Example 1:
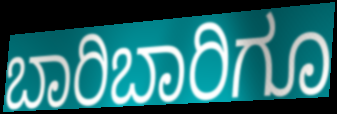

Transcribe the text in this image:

ಬಾರಿಬಾರಿಗೂ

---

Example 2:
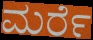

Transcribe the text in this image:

ಮರ್ರೆ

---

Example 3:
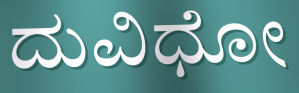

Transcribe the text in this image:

ದುವಿಧೋ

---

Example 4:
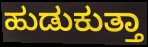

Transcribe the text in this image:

ಹುಡುಕುತ್ತಾ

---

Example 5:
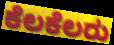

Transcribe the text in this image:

ಕೆಲಕೆಲರು